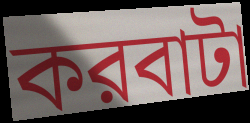
করবাটা